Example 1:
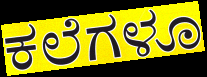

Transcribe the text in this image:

ಕಲೆಗಳೂ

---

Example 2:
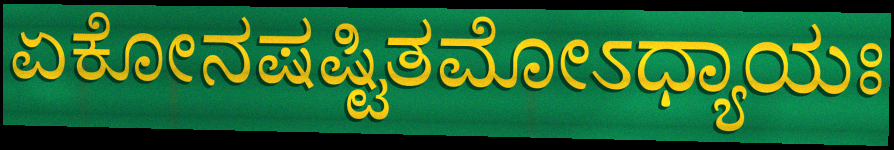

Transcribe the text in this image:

ಏಕೋನಷಷ್ಟಿತಮೋಽಧ್ಯಾಯಃ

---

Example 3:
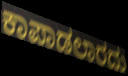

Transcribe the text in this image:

ಕಾಪಾಡಲಾರದು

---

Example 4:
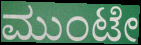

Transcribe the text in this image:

ಮುಂಟೇ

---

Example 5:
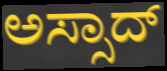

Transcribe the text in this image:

ಅಸ್ಸಾದ್